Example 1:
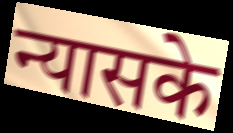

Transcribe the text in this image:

न्यासके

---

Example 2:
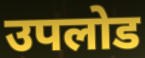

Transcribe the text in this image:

उपलोड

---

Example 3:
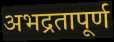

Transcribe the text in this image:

अभद्रतापूर्ण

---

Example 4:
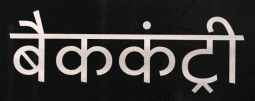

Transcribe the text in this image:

बैककंट्री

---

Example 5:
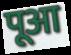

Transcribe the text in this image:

पूआ